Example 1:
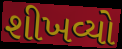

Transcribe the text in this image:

શીખવ્યો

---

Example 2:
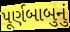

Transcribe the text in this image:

પૂર્ણબાબુનું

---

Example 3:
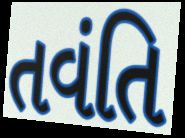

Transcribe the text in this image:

તવંતિ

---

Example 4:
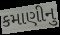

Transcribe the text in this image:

કમાણીનુ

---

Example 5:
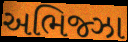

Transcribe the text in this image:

અભિજ્ઝા